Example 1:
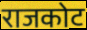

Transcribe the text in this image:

राजकोट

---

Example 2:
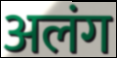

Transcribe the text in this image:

अलंग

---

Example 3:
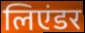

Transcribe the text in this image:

लिएंडर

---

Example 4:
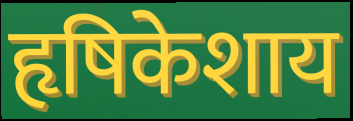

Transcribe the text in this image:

हृषिकेशाय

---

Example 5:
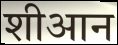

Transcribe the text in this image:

शीआन